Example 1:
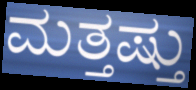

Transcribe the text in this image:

ಮತ್ತಷ್ತು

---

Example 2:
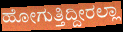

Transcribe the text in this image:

ಹೋಗುತ್ತಿದ್ದೀರಲ್ಲಾ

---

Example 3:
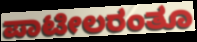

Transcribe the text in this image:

ಪಾಟೀಲರಂತೂ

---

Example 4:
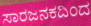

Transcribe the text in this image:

ಸಾರಜನಕದಿಂದ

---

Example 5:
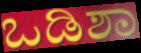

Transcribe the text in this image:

ಒಡಿಶಾ